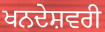
ਖਨਦੇਸ਼ਵਰੀ